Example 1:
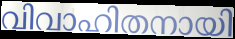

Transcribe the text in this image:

വിവാഹിതനായി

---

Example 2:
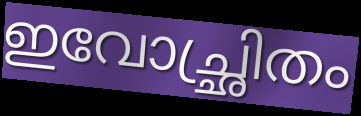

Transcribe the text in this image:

ഇവോച്ഛ്രിതം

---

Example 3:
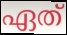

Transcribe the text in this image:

ഏത്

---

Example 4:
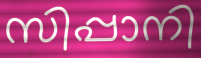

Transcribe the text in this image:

സിപ്പാനി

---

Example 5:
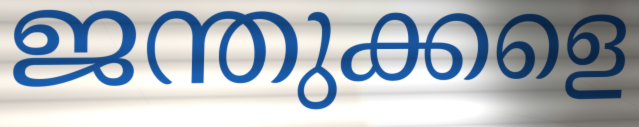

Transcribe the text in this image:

ജന്തുക്കളെ